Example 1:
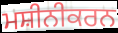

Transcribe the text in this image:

ਮਸ਼ੀਨੀਕਰਨ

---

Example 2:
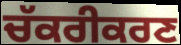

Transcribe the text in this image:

ਚੱਕਰੀਕਰਣ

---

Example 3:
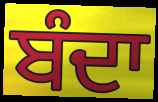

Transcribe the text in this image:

ਬੰਦਾ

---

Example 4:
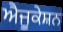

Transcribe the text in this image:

ਐਜੂਕੇਸ਼ਨ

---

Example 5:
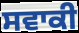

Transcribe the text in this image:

ਸਵਾਕੀ